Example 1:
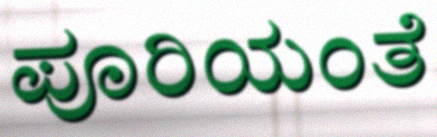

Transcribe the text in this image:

ಪೂರಿಯಂತೆ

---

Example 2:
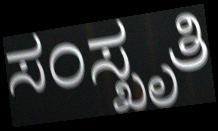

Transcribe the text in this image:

ಸಂಸ್ಖೃತಿ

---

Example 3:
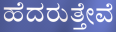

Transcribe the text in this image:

ಹೆದರುತ್ತೇವೆ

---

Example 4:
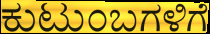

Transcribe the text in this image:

ಕುಟುಂಬಗಳಿಗೆ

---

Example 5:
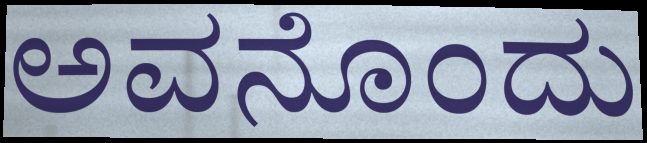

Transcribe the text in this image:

ಅವನೊಂದು